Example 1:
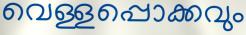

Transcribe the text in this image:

വെള്ളപ്പൊക്കവും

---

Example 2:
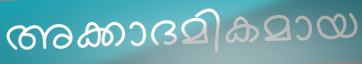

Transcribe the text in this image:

അക്കാദമികമായ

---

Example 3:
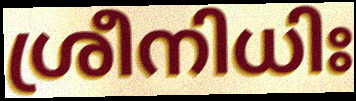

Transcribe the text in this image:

ശ്രീനിധിഃ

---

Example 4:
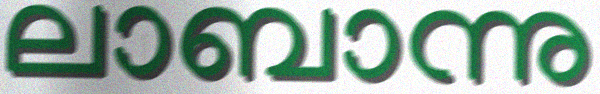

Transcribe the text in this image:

ലാബാന്നു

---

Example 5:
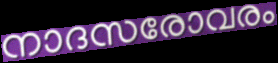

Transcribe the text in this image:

നാദസരോവരം